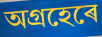
অগ্ৰহেৰে